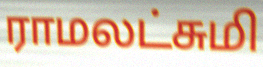
ராமலட்சுமி